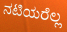
ನಟಿಯರೆಲ್ಲ